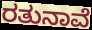
ರತುನಾವೆ